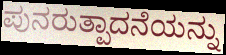
ಪುನರುತ್ಪಾದನೆಯನ್ನು